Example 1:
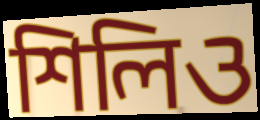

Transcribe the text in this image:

শিলিও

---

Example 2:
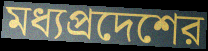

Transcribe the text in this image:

মধ্যপ্রদেশের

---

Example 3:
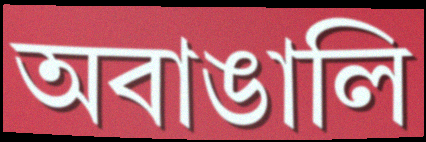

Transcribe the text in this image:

অবাঙালি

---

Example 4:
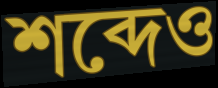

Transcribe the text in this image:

শব্দেও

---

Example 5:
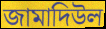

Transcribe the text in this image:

জামাদিউল